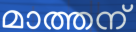
മാത്തന്